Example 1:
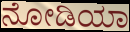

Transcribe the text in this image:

ನೋಡಿಯಾ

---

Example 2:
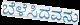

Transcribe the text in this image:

ಬೆಳೆಸಿದವನು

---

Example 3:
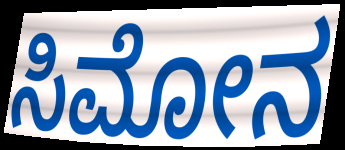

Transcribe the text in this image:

ಸಿಮೋನ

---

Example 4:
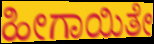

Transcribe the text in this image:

ಹೀಗಾಯಿತೇ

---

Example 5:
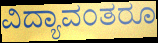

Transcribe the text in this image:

ವಿದ್ಯಾವಂತರೂ